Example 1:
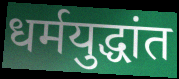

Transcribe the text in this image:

धर्मयुद्धांत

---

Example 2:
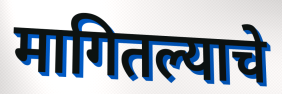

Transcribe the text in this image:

मागितल्याचे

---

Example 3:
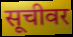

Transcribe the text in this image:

सूचीवर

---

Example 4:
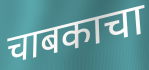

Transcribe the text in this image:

चाबकाचा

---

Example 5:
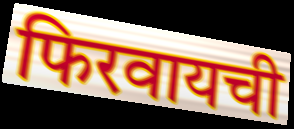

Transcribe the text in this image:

फिरवायची